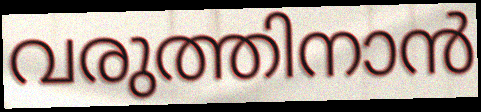
വരുത്തിനാൻ